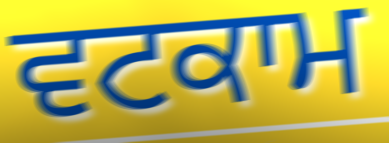
ਵਟਕਾਮ